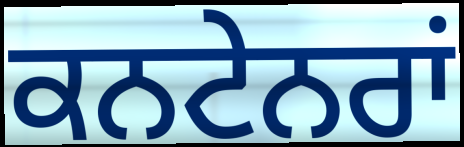
ਕਨਟੇਨਰਾਂ